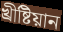
খ্ৰীষ্টিয়ান